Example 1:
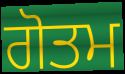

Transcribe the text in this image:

ਗੋਤਮ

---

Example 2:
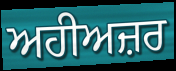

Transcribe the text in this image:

ਅਹੀਅਜ਼ਰ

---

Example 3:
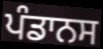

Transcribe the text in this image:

ਪੰਡਾਨਸ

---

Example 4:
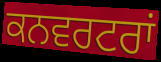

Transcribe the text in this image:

ਕਨਵਰਟਰਾਂ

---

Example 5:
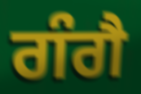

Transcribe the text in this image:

ਗੰਗੈ